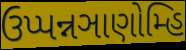
ઉપ્પન્નઞાણોમ્હિ